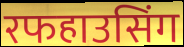
रफहाउसिंग